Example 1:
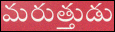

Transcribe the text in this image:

మరుత్తుడు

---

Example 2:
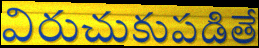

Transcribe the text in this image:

విరుచుకుపడితే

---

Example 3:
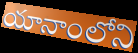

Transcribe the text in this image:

యానాంలోని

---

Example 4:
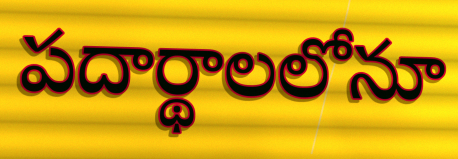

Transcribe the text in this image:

పదార్థాలలోనూ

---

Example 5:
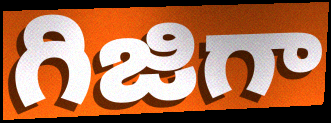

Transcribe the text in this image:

గిజిగా